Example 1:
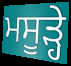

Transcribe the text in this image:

ਮਸੂੜ੍ਹੇ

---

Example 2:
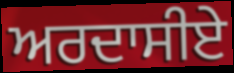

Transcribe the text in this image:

ਅਰਦਾਸੀਏ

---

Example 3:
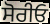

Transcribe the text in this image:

ਸੋਰੀਓ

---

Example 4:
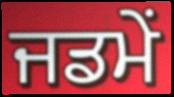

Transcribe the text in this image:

ਜਡਮੇਂ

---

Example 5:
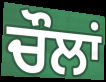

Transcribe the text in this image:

ਚੌਲਾਂ